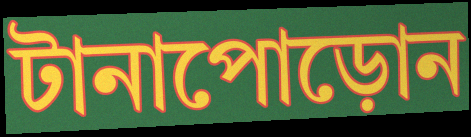
টানাপোড়োন